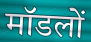
मॉडलों